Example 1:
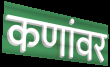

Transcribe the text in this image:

कणांवर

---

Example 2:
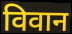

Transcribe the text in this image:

विवान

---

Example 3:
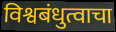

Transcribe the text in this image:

विश्वबंधुत्वाचा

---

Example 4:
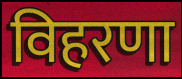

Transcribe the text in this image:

विहरणा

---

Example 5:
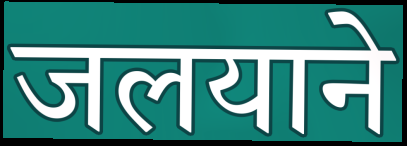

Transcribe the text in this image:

जलयाने